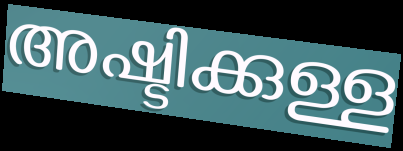
അഷ്ടിക്കുള്ള